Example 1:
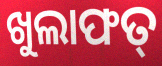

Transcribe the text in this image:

ଖୁଲାଫତ୍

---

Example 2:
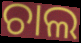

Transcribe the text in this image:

ଚାଲ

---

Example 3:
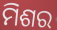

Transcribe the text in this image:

ମିଶର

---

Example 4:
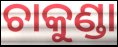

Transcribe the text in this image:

ଚାକୁଣ୍ଡା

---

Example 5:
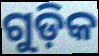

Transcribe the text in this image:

ଗୁଡ଼ିକ